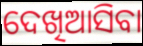
ଦେଖିଆସିବା